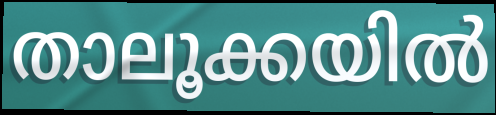
താലൂക്കയിൽ